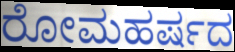
ರೋಮಹರ್ಷದ